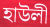
হাউলী